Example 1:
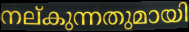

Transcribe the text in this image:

നല്കുന്നതുമായി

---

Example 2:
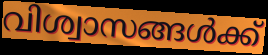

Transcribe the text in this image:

വിശ്വാസങ്ങൾക്ക്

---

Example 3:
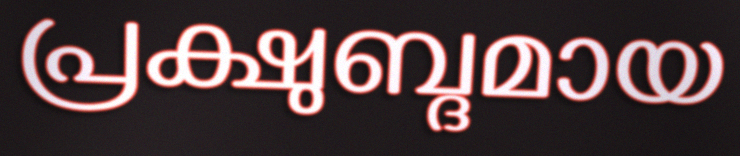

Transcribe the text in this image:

പ്രക്ഷുബ്ദമായ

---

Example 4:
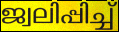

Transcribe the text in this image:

ജ്വലിപ്പിച്ച്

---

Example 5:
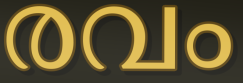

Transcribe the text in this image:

രവം